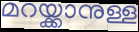
മറയ്ക്കാനുള്ള